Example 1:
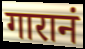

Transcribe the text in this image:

गारानं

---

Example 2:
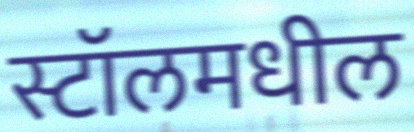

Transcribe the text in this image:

स्टॉलमधील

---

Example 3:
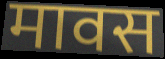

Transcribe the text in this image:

मावस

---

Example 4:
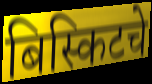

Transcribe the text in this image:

बिस्किटचे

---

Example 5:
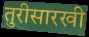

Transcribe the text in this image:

तुरीसारखी